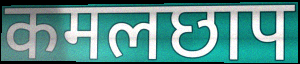
कमलछाप